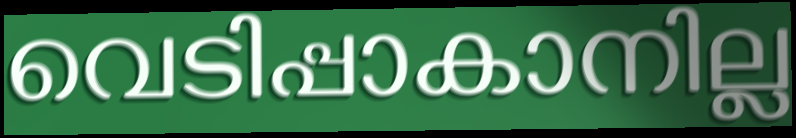
വെടിപ്പാകാനില്ല